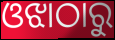
ଓଝାଠାରୁ